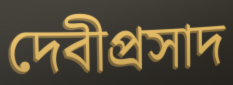
দেবীপ্রসাদ